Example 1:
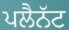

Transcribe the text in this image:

ਪਲੈਨੱਟ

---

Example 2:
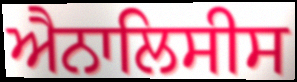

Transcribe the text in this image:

ਐਨਾਲਿਸੀਸ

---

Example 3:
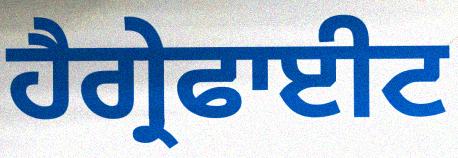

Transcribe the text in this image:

ਹੈਗ੍ਰੇਫਾਈਟ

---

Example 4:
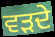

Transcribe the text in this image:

ਵੜਦੇ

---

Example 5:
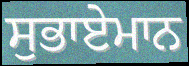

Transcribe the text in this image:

ਸੁਭਾਏਮਾਨ